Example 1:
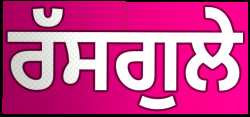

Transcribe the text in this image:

ਰੱਸਗੁਲੇ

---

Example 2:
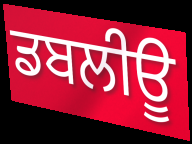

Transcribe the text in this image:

ਡਬਲੀਊ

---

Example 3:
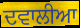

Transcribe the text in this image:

ਦਵਾਲੀਆ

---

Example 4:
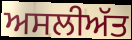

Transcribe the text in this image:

ਅਸਲੀਅੱਤ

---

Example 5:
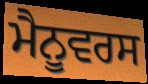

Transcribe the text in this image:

ਮੈਨੂਵਰਸ